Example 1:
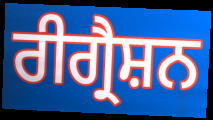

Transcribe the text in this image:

ਰੀਗ੍ਰੈਸ਼ਨ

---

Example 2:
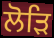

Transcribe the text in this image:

ਲੋੜਿ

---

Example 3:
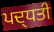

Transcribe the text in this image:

ਪਦ੍ਧਤੀ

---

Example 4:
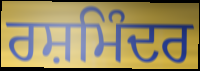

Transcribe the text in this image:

ਰਸ਼ਮਿੰਦਰ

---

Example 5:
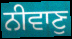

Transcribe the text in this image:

ਨੀਵਾਣੁ